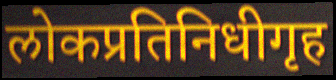
लोकप्रतिनिधीगृह